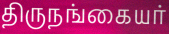
திருநங்கையர்